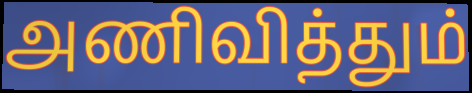
அணிவித்தும்